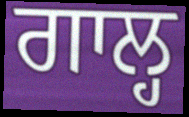
ਗਾਲ੍ਹ